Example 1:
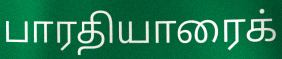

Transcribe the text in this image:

பாரதியாரைக்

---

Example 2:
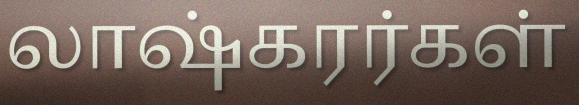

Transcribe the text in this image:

லாஷ்கரர்கள்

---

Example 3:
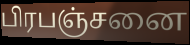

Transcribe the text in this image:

பிரபஞ்சனை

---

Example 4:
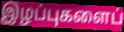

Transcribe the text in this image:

இழப்புகளைப்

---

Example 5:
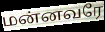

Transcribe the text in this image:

மன்னவரே